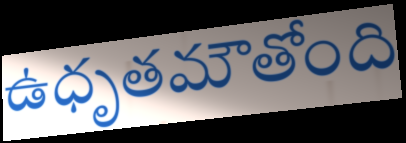
ఉధృతమౌతోంది